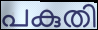
പകുതി